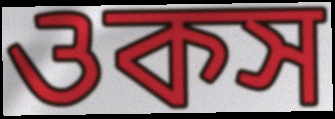
ওকস